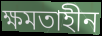
ক্ষমতাহীন